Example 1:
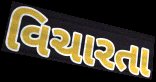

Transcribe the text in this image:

વિચારતા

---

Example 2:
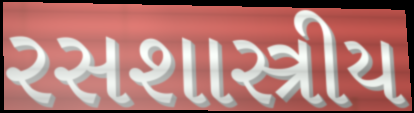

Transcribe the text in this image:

રસશાસ્ત્રીય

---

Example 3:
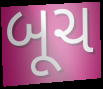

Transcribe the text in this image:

બૂચ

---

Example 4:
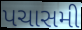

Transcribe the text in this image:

પચાસમી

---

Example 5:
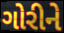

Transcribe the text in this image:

ગોરીને